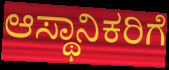
ಆಸ್ಥಾನಿಕರಿಗೆ